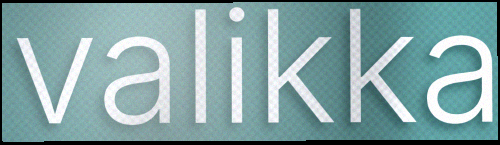
valikka